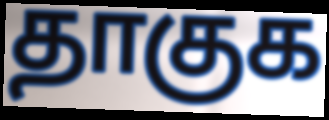
தாகுக